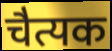
चैत्यक